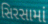
સિરસામાં